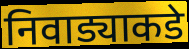
निवाड्याकडे